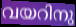
വയറിനു